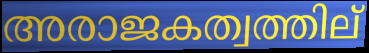
അരാജകത്വത്തില്